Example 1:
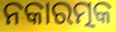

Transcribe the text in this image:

ନକାରତ୍ମକ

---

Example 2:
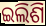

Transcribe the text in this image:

ଇଲିଶି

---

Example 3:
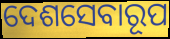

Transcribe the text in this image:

ଦେଶସେବାରୂପ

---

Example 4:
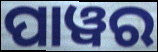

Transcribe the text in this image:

ପାୱର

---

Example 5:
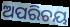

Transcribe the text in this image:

ଅପରିଚୟ